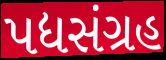
પદ્યસંગ્રહ